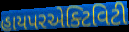
હાયપરએક્ટિવિટી